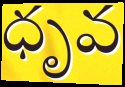
ధృవ